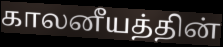
காலனீயத்தின்